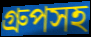
গ্রুপসহ